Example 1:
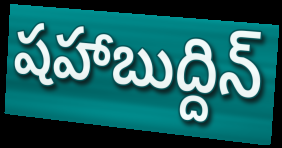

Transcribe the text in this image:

షహాబుద్దిన్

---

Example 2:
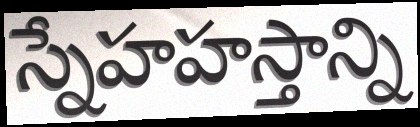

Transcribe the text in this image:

స్నేహహస్తాన్ని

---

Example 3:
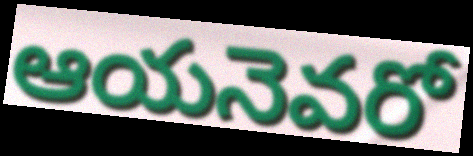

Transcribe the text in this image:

ఆయనెవరో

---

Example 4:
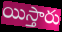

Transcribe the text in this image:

యిస్తారు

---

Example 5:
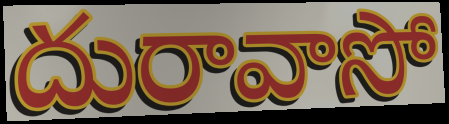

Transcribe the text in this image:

దురావాసో